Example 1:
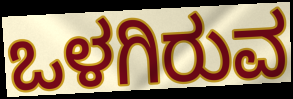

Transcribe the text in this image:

ಒಳಗಿರುವ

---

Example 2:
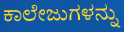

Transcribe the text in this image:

ಕಾಲೇಜುಗಳನ್ನು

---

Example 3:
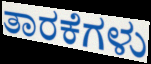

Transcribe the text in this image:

ತಾರಕೆಗಳು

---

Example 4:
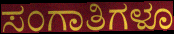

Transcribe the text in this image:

ಸಂಗಾತಿಗಳೂ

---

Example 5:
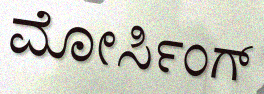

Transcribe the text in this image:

ಮೋರ್ಸಿಂಗ್